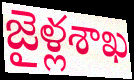
జైళ్లశాఖ